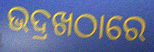
ଭଦ୍ରଖଠାରେ